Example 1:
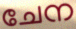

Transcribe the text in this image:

ചേന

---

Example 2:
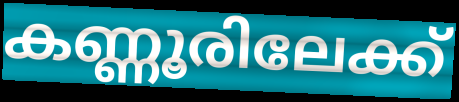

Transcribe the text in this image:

കണ്ണൂരിലേക്ക്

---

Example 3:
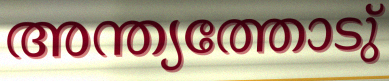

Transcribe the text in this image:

അന്ത്യത്തോടു്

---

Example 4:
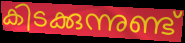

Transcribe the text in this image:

കിടക്കുന്നുണ്ട്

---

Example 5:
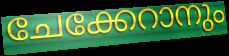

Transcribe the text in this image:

ചേക്കേറാനും